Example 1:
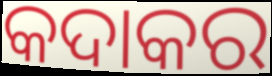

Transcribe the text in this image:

କଦାକର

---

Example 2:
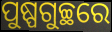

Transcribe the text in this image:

ପୁଷ୍ପଗୁଚ୍ଛରେ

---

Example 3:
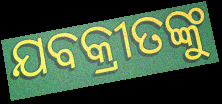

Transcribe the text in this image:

ଯବକ୍ରୀତଙ୍କୁ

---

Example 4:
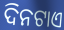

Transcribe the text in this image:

ଦିନଟାଏ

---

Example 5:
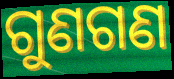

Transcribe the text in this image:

ଗୁଣଗଣ